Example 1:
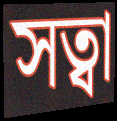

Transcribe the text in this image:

সত্বা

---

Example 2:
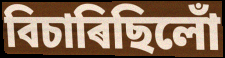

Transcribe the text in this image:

বিচাৰিছিলোঁ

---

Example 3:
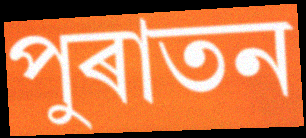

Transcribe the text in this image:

পুৰাতন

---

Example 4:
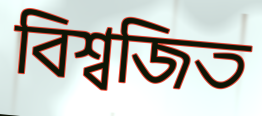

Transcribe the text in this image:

বিশ্বজিত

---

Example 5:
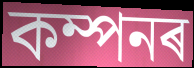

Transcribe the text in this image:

কম্পনৰ